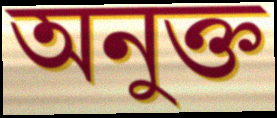
অনুক্ত